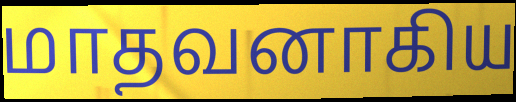
மாதவனாகிய